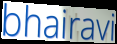
bhairavi